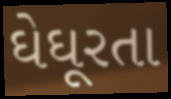
ઘેઘૂરતા